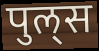
पुल्स